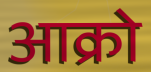
आक्रो